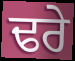
ਢਰੇ